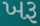
ખરૂ